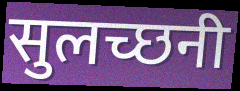
सुलच्छनी